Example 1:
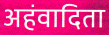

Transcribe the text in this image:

अहंवादिता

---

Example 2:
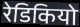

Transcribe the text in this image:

रेडिकियो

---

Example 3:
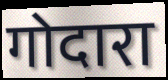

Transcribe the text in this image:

गोदारा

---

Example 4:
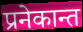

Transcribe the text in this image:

प्रनेकान्त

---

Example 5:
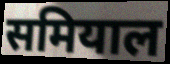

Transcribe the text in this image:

समियाल